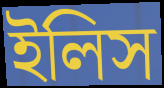
ইলিস